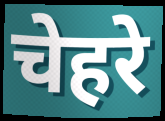
चेहरे